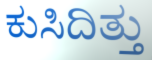
ಕುಸಿದಿತ್ತು